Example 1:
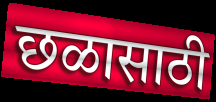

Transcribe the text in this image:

छळासाठी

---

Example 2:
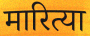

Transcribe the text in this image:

मारित्या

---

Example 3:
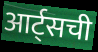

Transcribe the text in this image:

आर्ट्सची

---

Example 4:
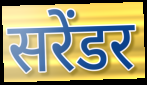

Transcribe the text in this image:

सरेंडर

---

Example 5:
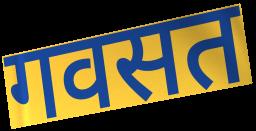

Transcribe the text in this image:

गवसत